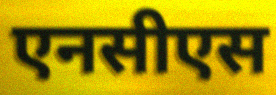
एनसीएस